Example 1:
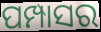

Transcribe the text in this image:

ପମ୍ପାସର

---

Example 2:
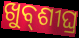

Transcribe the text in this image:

ଖୁବ୍‌ଶୀଘ୍ର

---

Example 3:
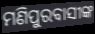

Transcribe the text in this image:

ମଣିପୁରବାସୀଙ୍କ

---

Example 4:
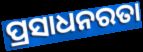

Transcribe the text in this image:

ପ୍ରସାଧନରତା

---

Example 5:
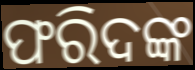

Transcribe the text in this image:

ଫରିଦଙ୍କ